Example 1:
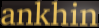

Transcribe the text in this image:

ankhin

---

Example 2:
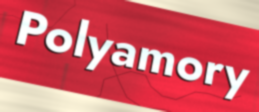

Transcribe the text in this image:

Polyamory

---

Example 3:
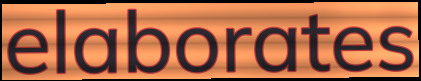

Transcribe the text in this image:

elaborates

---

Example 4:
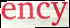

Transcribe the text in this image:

ency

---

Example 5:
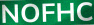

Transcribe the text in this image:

NOFHC